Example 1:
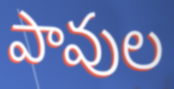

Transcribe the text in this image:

పావుల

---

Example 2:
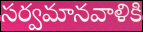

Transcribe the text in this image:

సర్వమానవాళికి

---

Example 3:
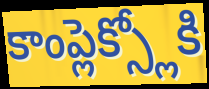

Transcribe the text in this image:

కాంప్లెక్స్లోకి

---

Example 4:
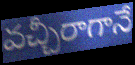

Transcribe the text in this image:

వచ్చీరాగానే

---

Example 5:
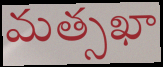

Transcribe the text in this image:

మత్సఖా